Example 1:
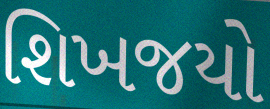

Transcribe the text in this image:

શિખજયો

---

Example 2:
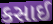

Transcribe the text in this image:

કસાઈ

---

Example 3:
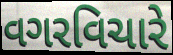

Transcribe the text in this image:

વગરવિચારે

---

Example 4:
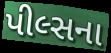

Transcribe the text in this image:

પીલ્સના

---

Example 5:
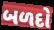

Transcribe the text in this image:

બળદો